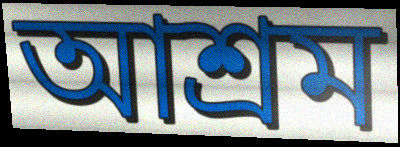
আশ্রম